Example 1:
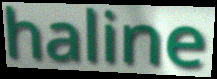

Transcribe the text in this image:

haline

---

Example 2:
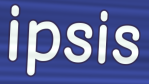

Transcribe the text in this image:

ipsis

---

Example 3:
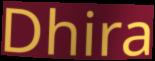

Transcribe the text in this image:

Dhira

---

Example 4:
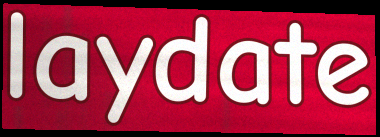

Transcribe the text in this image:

laydate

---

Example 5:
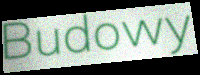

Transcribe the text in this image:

Budowy